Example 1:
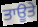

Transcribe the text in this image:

ਤਾਊਤੇ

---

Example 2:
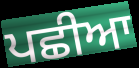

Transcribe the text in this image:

ਪਛੀਆ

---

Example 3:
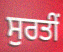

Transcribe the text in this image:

ਸੁਰਤੀਂ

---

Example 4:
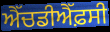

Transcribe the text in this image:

ਐੱਚਡੀਐੱਫ਼ਸੀ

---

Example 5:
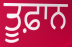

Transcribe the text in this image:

ਤੂਫ਼ਾਨ